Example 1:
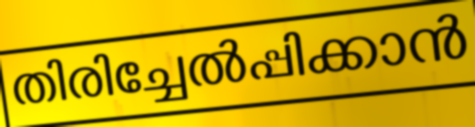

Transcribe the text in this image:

തിരിച്ചേൽപ്പിക്കാൻ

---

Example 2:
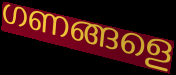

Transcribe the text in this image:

ഗണങ്ങളെ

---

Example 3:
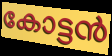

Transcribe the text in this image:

കോട്ടൻ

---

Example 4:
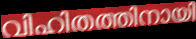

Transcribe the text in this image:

വിഹിതത്തിനായി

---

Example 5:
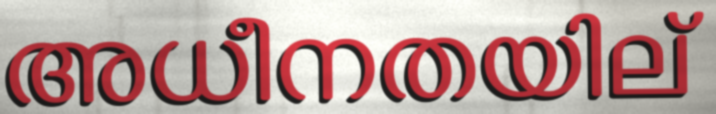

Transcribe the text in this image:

അധീനതയില്